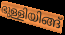
ഭുള്ളിയിങ്ങ്